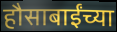
हौसाबाईंच्या